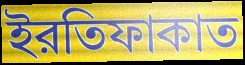
ইরতিফাকাত